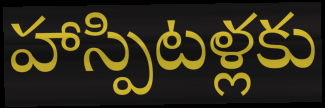
హాస్పిటళ్లకు